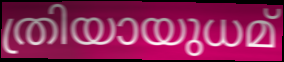
ത്രിയായുധമ്